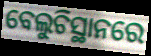
ବେଲୁଚିସ୍ଥାନରେ